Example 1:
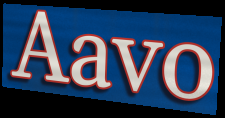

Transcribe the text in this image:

Aavo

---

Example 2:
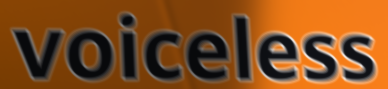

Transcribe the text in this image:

voiceless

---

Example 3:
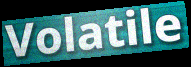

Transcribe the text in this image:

Volatile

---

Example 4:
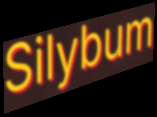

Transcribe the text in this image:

Silybum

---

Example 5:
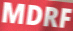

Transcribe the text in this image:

MDRF